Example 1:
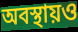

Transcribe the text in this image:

অবস্থায়ও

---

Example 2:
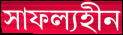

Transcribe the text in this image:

সাফল্যহীন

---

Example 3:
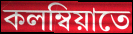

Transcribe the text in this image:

কলম্বিয়াতে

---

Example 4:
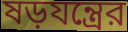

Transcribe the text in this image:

ষড়যন্ত্রের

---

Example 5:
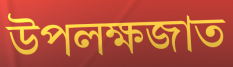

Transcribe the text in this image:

উপলক্ষজাত